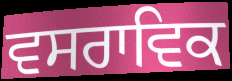
ਵਸਰਾਵਿਕ